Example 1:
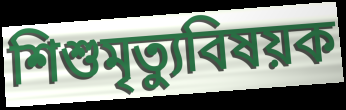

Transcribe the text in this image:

শিশুমৃত্যুবিষয়ক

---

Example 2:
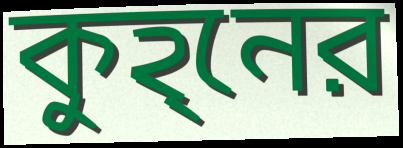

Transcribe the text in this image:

কুহ্‌নের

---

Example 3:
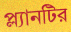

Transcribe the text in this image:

প্ল্যানটির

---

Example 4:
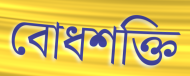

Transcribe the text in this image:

বোধশক্তি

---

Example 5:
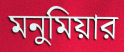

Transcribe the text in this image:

মনুমিয়ার